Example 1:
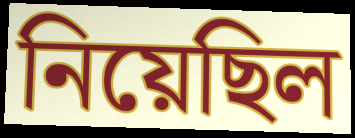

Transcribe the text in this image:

নিয়েছিল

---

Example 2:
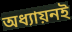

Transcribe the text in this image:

অধ্যায়নই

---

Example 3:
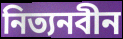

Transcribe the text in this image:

নিত্যনবীন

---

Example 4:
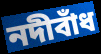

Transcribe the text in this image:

নদীবাঁধ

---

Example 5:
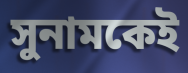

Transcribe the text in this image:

সুনামকেই